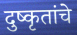
दुष्कृतांचे